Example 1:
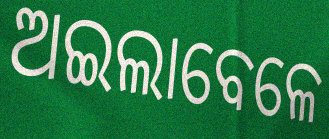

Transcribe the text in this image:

ଅଇଲାବେଳେ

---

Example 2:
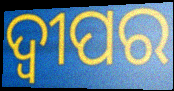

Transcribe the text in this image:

ଦ୍ଵୀପର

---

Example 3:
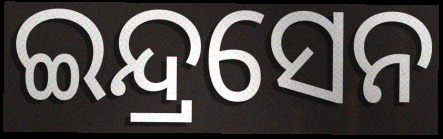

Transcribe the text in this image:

ଇନ୍ଦ୍ରସେନ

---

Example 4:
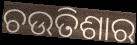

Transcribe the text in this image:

ଚଉତିଶାର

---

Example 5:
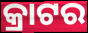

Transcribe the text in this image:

କ୍ରାଟର